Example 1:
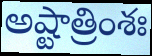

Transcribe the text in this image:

అష్టాత్రింశః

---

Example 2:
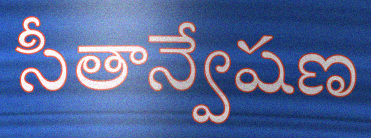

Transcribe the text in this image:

సీతాన్వేషణ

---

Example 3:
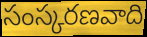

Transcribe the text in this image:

సంస్కరణవాది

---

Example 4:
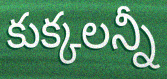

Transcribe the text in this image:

కుక్కలన్నీ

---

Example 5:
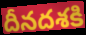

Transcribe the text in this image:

దీనదశకి